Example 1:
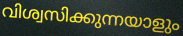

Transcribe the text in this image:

വിശ്വസിക്കുന്നയാളും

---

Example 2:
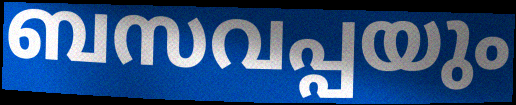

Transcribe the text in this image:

ബസവപ്പയും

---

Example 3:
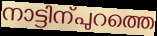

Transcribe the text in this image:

നാട്ടിന്പുറത്തെ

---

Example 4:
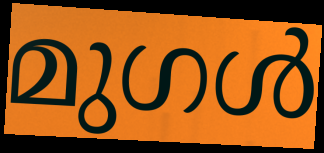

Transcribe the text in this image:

മുഗൾ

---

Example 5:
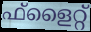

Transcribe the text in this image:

ഫ്ളൈറ്റ്